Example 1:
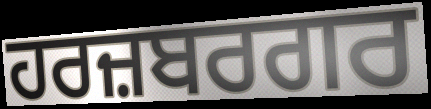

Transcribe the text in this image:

ਹਰਜ਼ਬਰਗਰ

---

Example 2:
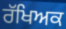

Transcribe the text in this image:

ਰੱਖਿਅਕ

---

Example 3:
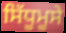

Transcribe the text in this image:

ਸਿੱਧੂਮੂਸੇ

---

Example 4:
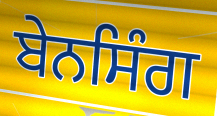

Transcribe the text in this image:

ਬੇਨਸਿੰਗ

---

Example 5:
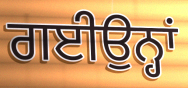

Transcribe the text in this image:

ਗਈਉਨ੍ਹਾਂ